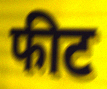
फीट